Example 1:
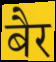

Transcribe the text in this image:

बैर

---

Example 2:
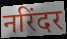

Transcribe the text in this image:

नरिंदर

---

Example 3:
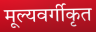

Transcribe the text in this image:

मूल्यवर्गीकृत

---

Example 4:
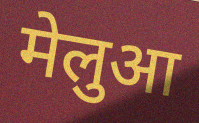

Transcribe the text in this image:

मेलुआ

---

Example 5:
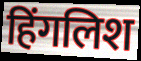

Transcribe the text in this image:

हिंगलिश